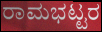
ರಾಮಭಟ್ಟರ